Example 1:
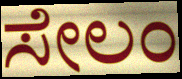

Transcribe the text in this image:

ಸೇಲಂ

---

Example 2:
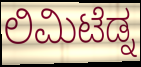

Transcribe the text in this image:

ಲಿಮಿಟೆಡ್ನ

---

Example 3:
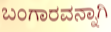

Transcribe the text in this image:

ಬಂಗಾರವನ್ನಾಗಿ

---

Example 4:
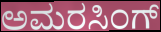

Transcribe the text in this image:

ಅಮರಸಿಂಗ್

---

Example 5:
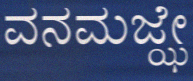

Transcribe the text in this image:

ವನಮಜ್ಝೇ